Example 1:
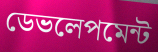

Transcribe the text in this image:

ডেভলেপমেন্ট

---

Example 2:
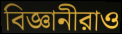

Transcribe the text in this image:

বিজ্ঞানীরাও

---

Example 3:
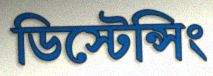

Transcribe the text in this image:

ডিস্টেন্সিং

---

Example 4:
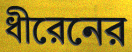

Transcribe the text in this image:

ধীরেনের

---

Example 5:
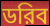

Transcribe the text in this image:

ডরিব